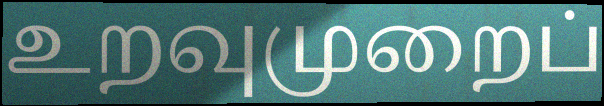
உறவுமுறைப்